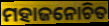
ମହାଜନୋଚିତ